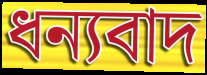
ধন্যবাদ